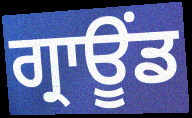
ਗ੍ਰਾਊਂਡ